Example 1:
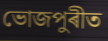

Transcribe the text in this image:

ভোজপুৰীত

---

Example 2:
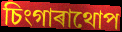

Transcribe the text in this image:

চিংগাৰাথোপ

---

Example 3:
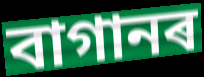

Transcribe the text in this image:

বাগানৰ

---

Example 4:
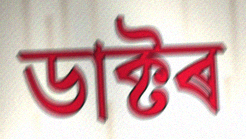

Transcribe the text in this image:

ডাক্টৰ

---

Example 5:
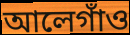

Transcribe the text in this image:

আলেগাঁও